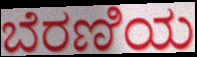
ಬೆರಣಿಯ